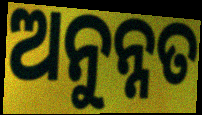
ଅନୁନ୍ନତ